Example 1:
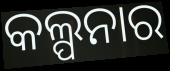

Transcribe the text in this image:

କଲ୍ପନାର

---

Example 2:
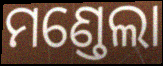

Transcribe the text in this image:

ମଣ୍ଡେଲା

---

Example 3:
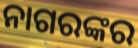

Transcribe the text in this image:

ନାଗରଙ୍କର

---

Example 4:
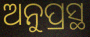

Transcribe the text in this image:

ଅନୁପ୍ରସ୍ଥ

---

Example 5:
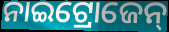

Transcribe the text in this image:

ନାଇଟ୍ରୋଜେନ୍